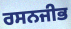
ਰਸਨਜੀਭ